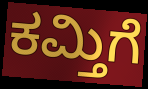
ಕಮ್ತಿಗೆ